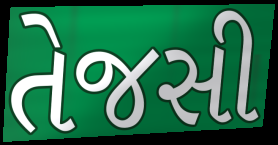
તેજસી